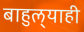
बाहुल्याही